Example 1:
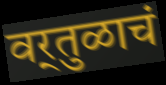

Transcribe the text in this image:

वर्तुळाचं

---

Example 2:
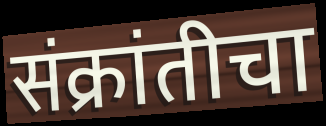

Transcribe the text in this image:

संक्रांतीचा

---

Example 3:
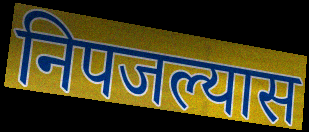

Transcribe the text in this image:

निपजल्यास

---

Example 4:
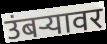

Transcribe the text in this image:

उंबर्‍यावर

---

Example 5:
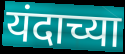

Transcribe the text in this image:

यंदाच्या